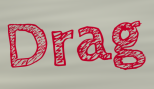
Drag